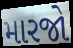
મારજો